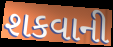
શકવાની